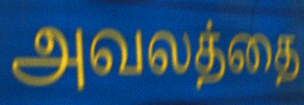
அவலத்தை